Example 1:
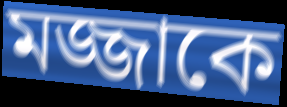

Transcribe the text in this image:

মজ্জাকে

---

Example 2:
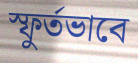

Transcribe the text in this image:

স্ফুর্তভাবে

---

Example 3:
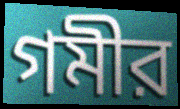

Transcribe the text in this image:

গমীর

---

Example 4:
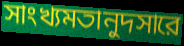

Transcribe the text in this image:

সাংখ্যমতানুদসারে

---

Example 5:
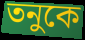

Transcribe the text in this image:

তনুকে